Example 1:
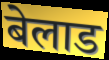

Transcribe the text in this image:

बेलाड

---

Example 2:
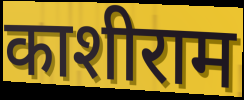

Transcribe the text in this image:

काशीराम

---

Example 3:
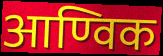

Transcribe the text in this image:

आण्विक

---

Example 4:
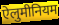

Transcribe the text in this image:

ऐलुमीनियम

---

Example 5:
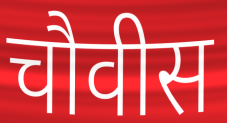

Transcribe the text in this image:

चौवीस